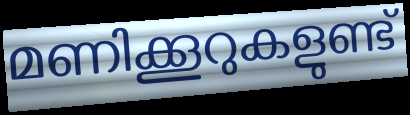
മണിക്കൂറുകളുണ്ട്